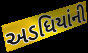
અડધિયાંની